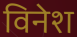
विनेश